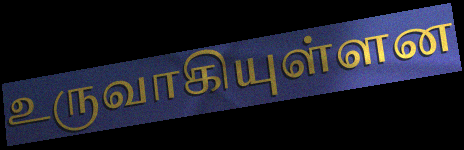
உருவாகியுள்ளன